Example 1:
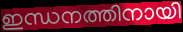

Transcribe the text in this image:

ഇന്ധനത്തിനായി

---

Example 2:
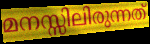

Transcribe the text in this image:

മനസ്സിലിരുന്നത്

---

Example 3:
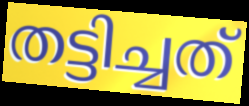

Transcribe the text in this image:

തട്ടിച്ചത്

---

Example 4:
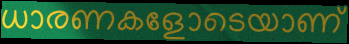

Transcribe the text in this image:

ധാരണകളോടെയാണ്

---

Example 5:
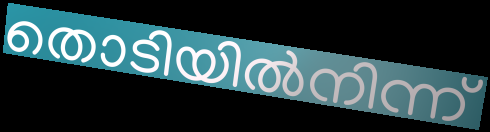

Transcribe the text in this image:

തൊടിയിൽനിന്ന്